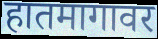
हातमागावर